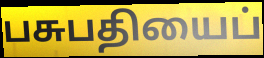
பசுபதியைப்